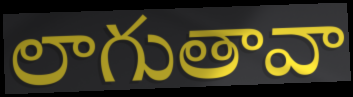
లాగుతావా